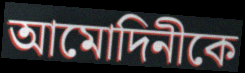
আমোদিনীকে